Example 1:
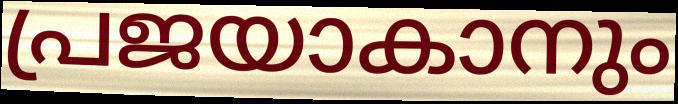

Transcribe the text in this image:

പ്രജയാകാനും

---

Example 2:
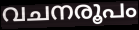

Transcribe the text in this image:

വചനരൂപം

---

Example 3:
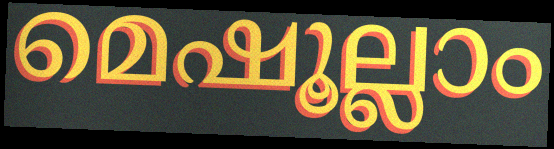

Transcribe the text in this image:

മെഷൂല്ലാം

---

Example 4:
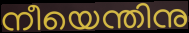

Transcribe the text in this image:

നീയെന്തിനു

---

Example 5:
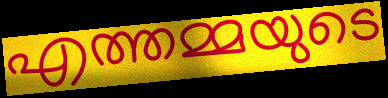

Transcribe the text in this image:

എത്തമ്മയുടെ